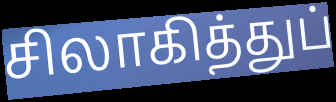
சிலாகித்துப்